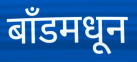
बाँडमधून